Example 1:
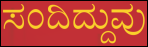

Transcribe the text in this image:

ಸಂದಿದ್ದುವು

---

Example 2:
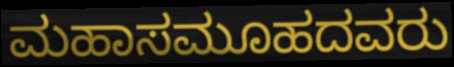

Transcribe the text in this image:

ಮಹಾಸಮೂಹದವರು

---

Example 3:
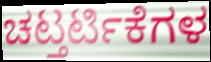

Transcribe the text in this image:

ಚಟ್ತರ್ಟಿಕೆಗಳ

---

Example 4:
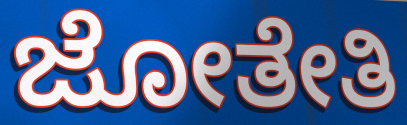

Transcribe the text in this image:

ಜೋತೇತಿ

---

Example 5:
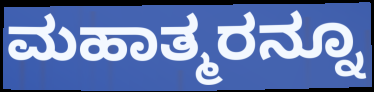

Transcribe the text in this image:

ಮಹಾತ್ಮರನ್ನೂ